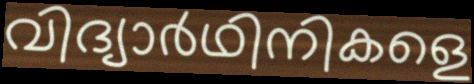
വിദ്യാർഥിനികളെ